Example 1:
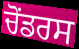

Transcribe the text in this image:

ਚੋਂਡਰਸ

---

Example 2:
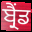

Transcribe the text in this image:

ਬ੍ਰੈਂਡ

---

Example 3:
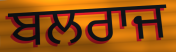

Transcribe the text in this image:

ਬਲਰਾਜ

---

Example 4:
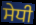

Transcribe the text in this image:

ਸੇਧੀ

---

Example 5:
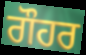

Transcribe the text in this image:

ਗੌਹਰ